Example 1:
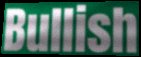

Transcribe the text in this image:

Bullish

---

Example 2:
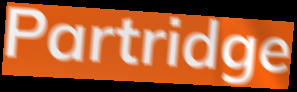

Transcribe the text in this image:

Partridge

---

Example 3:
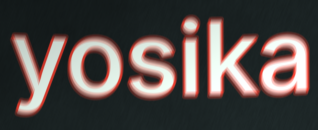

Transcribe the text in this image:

yosika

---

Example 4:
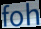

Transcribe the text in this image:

foh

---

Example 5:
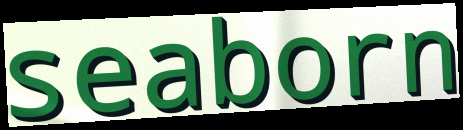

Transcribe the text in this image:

seaborn